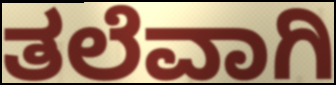
ತಲೆವಾಗಿ